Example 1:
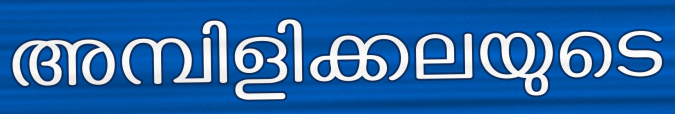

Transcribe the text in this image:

അമ്പിളിക്കലയുടെ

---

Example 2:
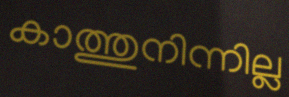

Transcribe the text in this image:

കാത്തുനിന്നില്ല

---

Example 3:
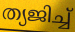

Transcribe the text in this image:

ത്യജിച്ച്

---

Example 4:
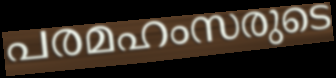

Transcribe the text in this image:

പരമഹംസരുടെ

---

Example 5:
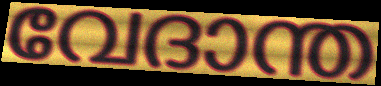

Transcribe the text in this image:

വേദാന്ത